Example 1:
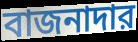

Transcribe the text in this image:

বাজনাদার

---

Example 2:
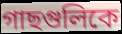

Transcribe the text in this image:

গাছগুলিকে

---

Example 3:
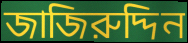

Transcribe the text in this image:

জাজিরুদ্দিন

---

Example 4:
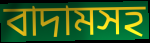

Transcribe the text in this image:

বাদামসহ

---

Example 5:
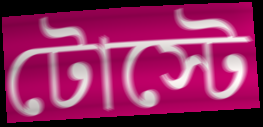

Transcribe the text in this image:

টোস্টে